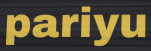
pariyu